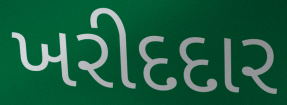
ખરીદદાર